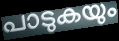
പാടുകയും